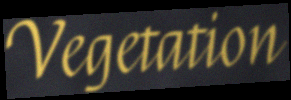
Vegetation